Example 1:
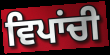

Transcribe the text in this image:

ਵਿਪਾਂਚੀ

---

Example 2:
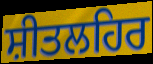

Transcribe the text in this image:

ਸ਼ੀਤਲਹਿਰ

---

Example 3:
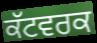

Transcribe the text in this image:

ਕੱਟਵਰਕ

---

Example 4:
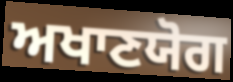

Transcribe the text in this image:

ਅਖਾਣਯੋਗ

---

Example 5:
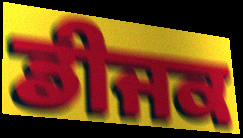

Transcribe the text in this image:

ਡੀਜਕ